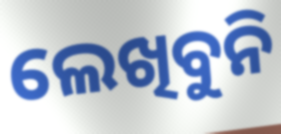
ଲେଖିବୁନି